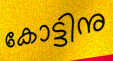
കോട്ടിനു